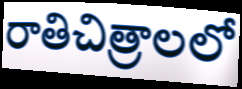
రాతిచిత్రాలలో